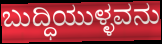
ಬುದ್ಧಿಯುಳ್ಳವನು